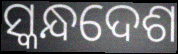
ସ୍କନ୍ଧଦେଶ